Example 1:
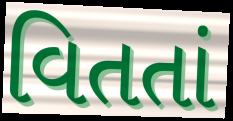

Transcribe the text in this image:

વિતતાં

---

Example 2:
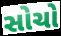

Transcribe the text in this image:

સોચો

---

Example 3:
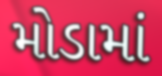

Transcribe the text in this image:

મોડામાં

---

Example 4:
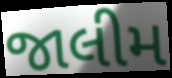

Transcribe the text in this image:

જાલીમ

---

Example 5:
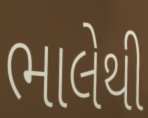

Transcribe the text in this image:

ભાલેથી